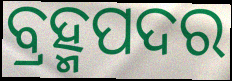
ବ୍ରହ୍ମପଦର